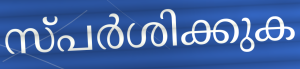
സ്പർശിക്കുക